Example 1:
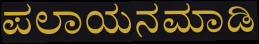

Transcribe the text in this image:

ಪಲಾಯನಮಾಡಿ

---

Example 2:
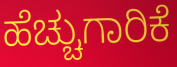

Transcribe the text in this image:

ಹೆಚ್ಚುಗಾರಿಕೆ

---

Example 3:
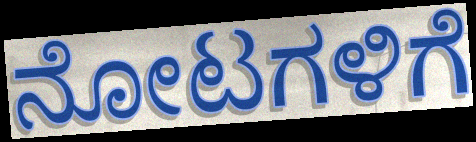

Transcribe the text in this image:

ನೋಟಗಳಿಗೆ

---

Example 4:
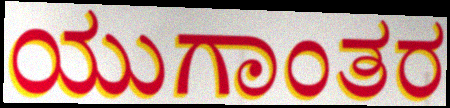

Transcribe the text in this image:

ಯುಗಾಂತರ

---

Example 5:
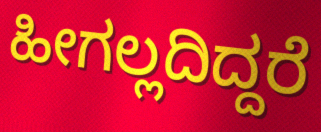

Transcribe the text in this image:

ಹೀಗಲ್ಲದಿದ್ದರೆ